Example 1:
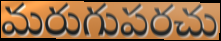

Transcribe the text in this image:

మరుగుపరచు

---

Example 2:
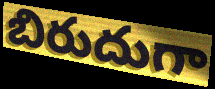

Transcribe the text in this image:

బిరుదుగా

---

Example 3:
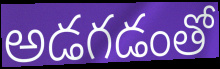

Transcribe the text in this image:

అడగడంతో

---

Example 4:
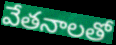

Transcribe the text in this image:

వేతనాలతో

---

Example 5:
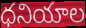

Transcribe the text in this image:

ధనియాల